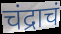
चंद्राचं